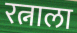
रत्नाला